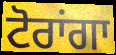
ਟੋਰਾਂਗਾ